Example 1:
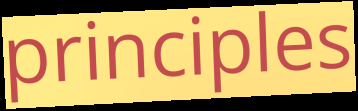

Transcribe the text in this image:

principles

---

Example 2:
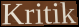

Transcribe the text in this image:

Kritik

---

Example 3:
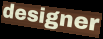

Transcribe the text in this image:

designer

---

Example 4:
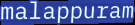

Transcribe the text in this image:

malappuram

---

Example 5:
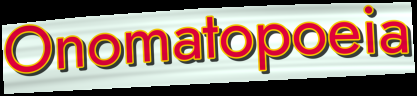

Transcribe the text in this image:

Onomatopoeia